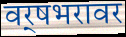
वर्षभरावर